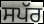
ਸਪੱਰ